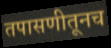
तपासणीतूनच